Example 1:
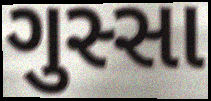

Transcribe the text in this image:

ગુસ્સા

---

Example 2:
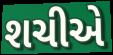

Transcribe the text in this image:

શચીએ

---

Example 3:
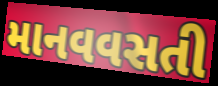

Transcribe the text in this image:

માનવવસતી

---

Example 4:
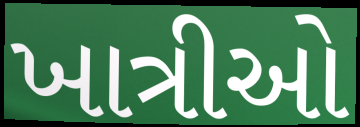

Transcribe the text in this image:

ખાત્રીઓ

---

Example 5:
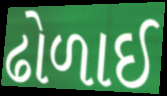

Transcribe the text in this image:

ઢોળાઈ